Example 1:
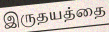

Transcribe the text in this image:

இருதயத்தை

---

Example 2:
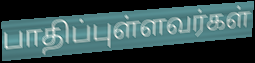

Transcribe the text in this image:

பாதிப்புள்ளவர்கள்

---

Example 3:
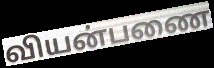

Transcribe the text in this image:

வியன்பணை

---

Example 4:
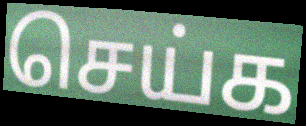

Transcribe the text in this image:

செய்க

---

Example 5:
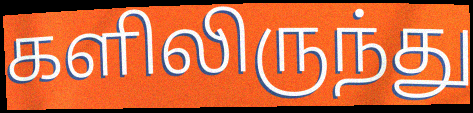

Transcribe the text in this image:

களிலிருந்து